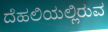
ದೆಹಲಿಯಲ್ಲಿರುವ